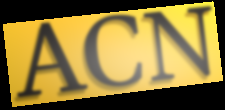
ACN